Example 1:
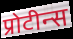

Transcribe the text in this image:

प्रोटीन्स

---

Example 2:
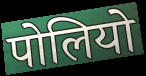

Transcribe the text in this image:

पोलियो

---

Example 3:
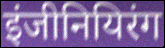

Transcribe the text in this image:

इंजीनियिरंग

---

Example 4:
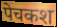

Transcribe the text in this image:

पेचकश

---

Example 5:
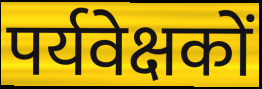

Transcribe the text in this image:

पर्यवेक्षकों